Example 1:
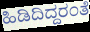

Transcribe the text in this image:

ಹಿಡಿದಿದ್ದರಂತೆ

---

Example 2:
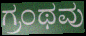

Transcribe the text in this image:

ಗ್ರಂಥವು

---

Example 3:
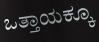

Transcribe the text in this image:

ಒತ್ತಾಯಕ್ಕೂ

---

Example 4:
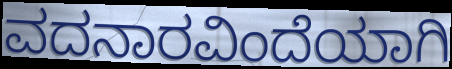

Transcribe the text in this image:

ವದನಾರವಿಂದೆಯಾಗಿ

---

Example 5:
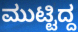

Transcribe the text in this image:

ಮುಟ್ಟಿದ್ದ